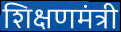
शिक्षणमंत्री